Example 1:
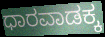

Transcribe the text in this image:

ಧಾರವಾಡಕ್ಕ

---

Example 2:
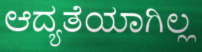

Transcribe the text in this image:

ಆದ್ಯತೆಯಾಗಿಲ್ಲ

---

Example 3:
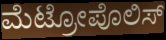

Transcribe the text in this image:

ಮೆಟ್ರೋಪೊಲಿಸ್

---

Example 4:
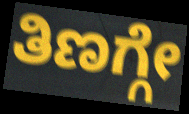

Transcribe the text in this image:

ತಿಣಗ್ಗೇ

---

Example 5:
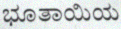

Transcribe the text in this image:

ಭೂತಾಯಿಯ